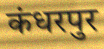
कंधरपुर